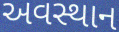
અવસ્થાન